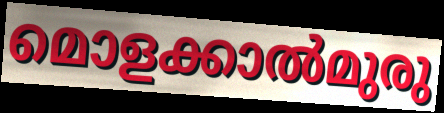
മൊളക്കാൽമുരു